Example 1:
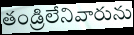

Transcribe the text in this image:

తండ్రిలేనివారును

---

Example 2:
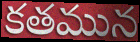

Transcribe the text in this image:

కతమున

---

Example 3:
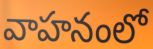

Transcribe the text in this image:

వాహనంలో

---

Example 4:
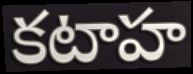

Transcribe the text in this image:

కటాహ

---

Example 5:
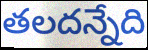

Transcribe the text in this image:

తలదన్నేది